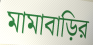
মামাবাড়ির